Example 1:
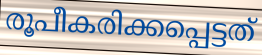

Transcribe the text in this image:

രൂപീകരിക്കപ്പെട്ടത്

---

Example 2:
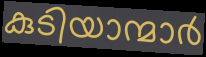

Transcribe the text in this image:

കുടിയാന്മാർ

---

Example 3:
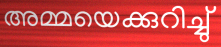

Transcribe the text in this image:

അമ്മയെക്കുറിച്ചു്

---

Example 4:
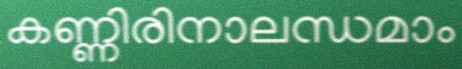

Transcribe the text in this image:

കണ്ണിരിനാലന്ധമാം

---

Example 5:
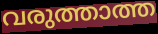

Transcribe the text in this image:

വരുത്താത്ത